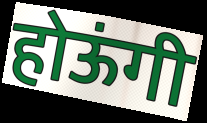
होऊंगी